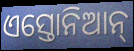
ଏସ୍ତୋନିଆନ୍